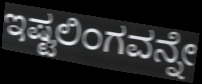
ಇಷ್ಟಲಿಂಗವನ್ನೇ